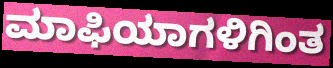
ಮಾಫಿಯಾಗಳಿಗಿಂತ